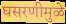
घसरणीमुळे